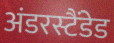
अंडरस्टैंडेड